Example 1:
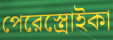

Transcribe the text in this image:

পেরেস্ত্রোইকা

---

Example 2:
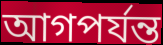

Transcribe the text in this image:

আগপর্যন্ত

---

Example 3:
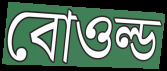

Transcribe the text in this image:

বোওল্ড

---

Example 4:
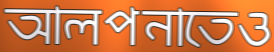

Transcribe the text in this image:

আলপনাতেও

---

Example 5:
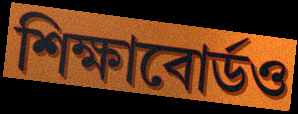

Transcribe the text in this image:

শিক্ষাবোর্ডও